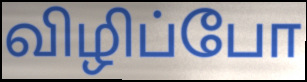
விழிப்போ